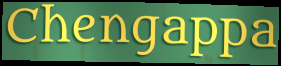
Chengappa